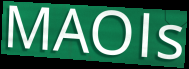
MAOIs